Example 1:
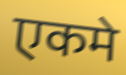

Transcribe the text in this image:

एकमे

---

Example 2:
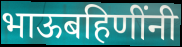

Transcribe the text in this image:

भाऊबहिणींनी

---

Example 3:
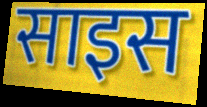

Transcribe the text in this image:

साइस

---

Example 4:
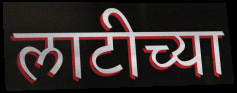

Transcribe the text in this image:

लाटीच्या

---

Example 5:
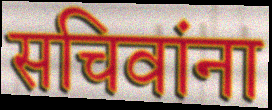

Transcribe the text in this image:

सचिवांना